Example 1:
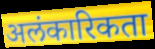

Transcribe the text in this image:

अलंकारिकता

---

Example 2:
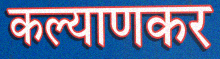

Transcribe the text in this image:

कल्याणकर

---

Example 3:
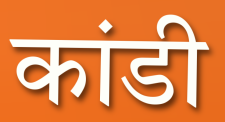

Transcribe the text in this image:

कांडी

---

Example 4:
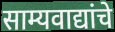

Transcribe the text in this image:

साम्यवाद्यांचे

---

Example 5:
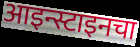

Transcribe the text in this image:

आइन्स्टाइनचा